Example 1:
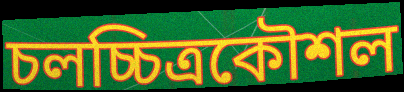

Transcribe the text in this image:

চলচ্চিত্রকৌশল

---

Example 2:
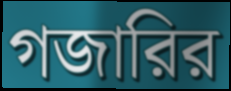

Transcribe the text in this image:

গজারির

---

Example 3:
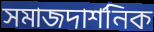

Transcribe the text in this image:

সমাজদার্শনিক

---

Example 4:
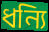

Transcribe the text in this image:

ধন্যি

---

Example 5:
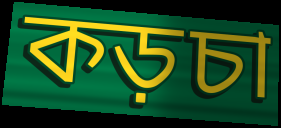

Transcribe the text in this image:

কড়চা